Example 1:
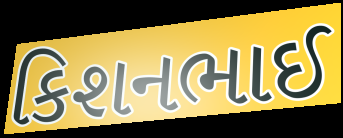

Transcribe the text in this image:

કિશનભાઈ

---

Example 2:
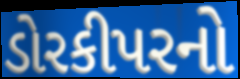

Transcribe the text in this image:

ડોરકીપરનો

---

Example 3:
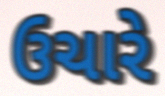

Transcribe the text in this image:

ઉચારે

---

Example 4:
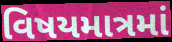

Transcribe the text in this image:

વિષયમાત્રમાં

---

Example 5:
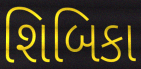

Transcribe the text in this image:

શિબિકા